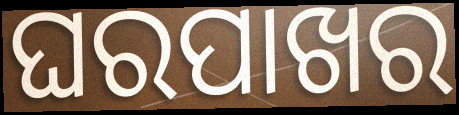
ଘରପାଖର